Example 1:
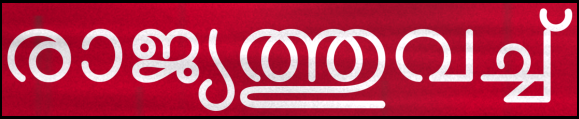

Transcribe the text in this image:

രാജ്യത്തുവച്ച്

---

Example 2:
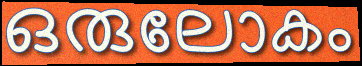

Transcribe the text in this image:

ഒരുലോകം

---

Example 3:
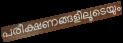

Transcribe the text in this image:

പരീക്ഷണങ്ങളിലൂടെയും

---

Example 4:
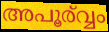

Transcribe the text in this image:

അപൂര്വ്വം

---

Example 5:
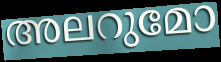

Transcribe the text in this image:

അലറുമോ